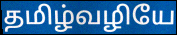
தமிழ்வழியே